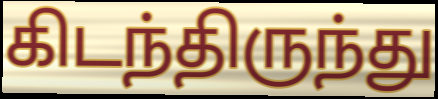
கிடந்திருந்து